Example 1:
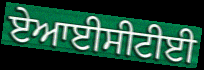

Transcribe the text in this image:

ਏਆਈਸੀਟੀਈ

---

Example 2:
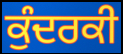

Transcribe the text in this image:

ਕੁੰਦਰਕੀ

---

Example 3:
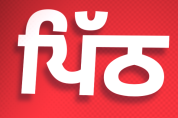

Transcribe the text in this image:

ਪਿੱਠ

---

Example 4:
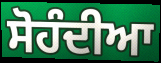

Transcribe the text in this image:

ਸੋਹੰਦੀਆ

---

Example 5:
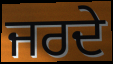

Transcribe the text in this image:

ਜਰਦੇ